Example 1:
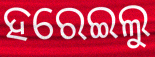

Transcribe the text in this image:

ହରେଇଲୁ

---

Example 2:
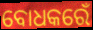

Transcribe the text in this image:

ବୋଧକରେଁ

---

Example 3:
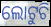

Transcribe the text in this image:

ଲୋଟୁଚି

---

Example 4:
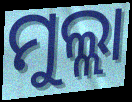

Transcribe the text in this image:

ମୁଲ୍ଲା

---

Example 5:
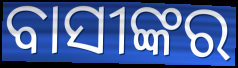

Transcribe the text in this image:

ବାସୀଙ୍କର